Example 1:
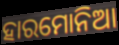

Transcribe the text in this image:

ହାରମୋନିଆ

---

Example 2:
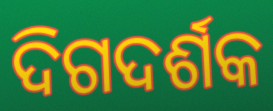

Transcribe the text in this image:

ଦିଗଦର୍ଶକ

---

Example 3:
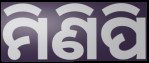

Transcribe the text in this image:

ମିଣିପି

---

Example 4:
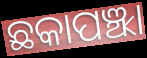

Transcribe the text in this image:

ଛକାପଞ୍ଝା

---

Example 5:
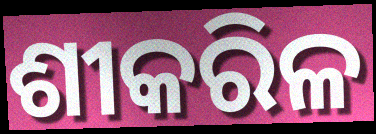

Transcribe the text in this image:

ଶୀକରିଳ